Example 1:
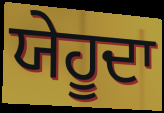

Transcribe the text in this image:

ਯੇਹੂਦਾ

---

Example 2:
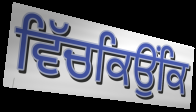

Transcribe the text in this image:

ਵਿੱਚਕਿਉਂਕਿ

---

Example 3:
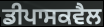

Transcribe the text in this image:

ਡੀਪਾਸਕਵੈਲ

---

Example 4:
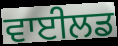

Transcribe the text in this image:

ਵਾਈਲਡ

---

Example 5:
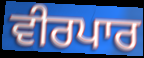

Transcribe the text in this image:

ਵੀਰਪਾਰ